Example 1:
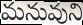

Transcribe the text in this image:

మనువుని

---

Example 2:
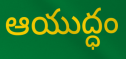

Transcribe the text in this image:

ఆయుద్ధం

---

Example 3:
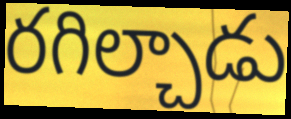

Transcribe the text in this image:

రగిల్చాడు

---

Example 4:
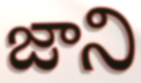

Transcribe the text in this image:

జాని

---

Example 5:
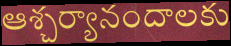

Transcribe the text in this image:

ఆశ్చర్యానందాలకు